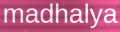
madhalya